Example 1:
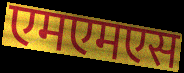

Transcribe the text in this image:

एमएमएस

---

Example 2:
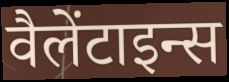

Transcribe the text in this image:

वैलेंटाइन्स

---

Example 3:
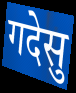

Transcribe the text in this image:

गदेसु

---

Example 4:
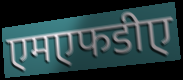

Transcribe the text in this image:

एमएफडीए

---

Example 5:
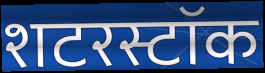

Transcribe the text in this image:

शटरस्‍टॉक